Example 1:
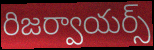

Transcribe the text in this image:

రిజర్వాయర్స్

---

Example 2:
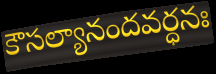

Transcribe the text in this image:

కౌసల్యానందవర్ధనః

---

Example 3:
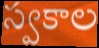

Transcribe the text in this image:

స్వకాల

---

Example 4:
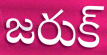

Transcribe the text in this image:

జరుక్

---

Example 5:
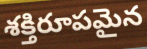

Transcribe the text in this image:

శక్తిరూపమైన